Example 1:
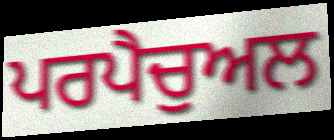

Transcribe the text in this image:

ਪਰਪੈਚੁਅਲ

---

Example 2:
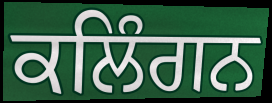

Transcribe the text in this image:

ਕਲਿੰਗਨ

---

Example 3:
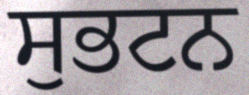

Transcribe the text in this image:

ਸੁਭਟਨ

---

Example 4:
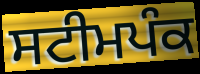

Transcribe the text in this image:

ਸਟੀਮਪੰਕ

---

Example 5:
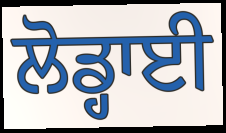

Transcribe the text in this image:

ਲੋਡ੍ਹਾਈ